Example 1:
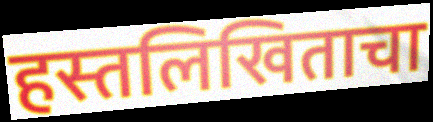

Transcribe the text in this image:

हस्तलिखिताचा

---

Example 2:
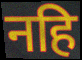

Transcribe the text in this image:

नहि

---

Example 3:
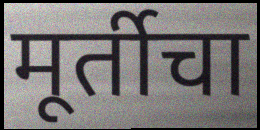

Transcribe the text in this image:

मूर्तीचा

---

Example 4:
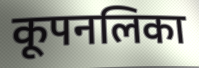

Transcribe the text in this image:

कूपनलिका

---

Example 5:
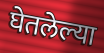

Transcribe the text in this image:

घेतलेल्या